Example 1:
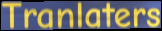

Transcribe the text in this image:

Tranlaters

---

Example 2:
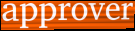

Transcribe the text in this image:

approver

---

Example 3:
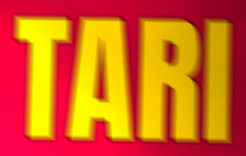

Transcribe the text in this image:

TARI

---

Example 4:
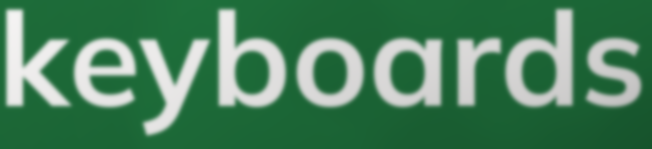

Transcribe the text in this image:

keyboards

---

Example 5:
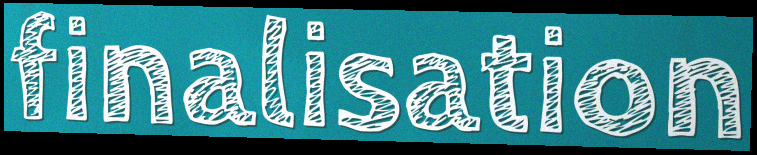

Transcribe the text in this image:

finalisation